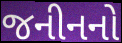
જનીનનો